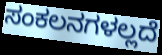
ಸಂಕಲನಗಳಲ್ಲದೆ